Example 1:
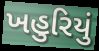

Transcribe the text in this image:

ખહુરિયું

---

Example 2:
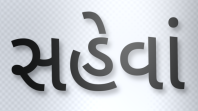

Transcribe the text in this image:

સહેવાં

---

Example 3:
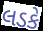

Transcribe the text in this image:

લડકે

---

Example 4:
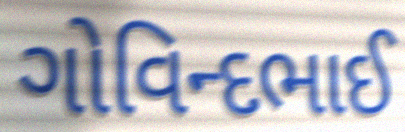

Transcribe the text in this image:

ગોવિન્દભાઈ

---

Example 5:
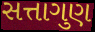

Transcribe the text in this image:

સત્તાગુણ